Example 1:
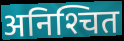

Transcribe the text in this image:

अनिश्चित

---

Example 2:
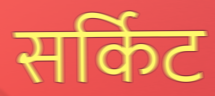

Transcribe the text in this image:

सर्किट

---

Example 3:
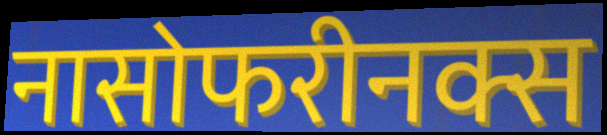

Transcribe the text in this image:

नासोफरीनक्स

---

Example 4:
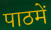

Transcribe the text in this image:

पाठमें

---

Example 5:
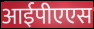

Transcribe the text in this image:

आईपीएएस